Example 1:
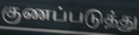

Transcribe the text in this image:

குணப்படுத்து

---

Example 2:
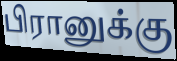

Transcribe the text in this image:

பிரானுக்கு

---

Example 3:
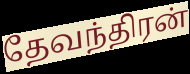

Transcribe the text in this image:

தேவந்திரன்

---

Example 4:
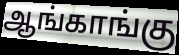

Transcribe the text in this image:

ஆங்காங்கு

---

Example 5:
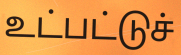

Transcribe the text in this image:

உட்பட்டுச்